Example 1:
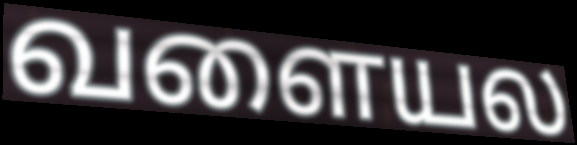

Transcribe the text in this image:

வளையல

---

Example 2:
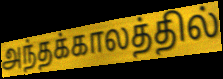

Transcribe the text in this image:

அந்தக்காலத்தில்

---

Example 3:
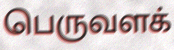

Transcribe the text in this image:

பெருவளக்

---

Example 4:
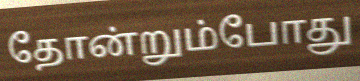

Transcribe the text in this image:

தோன்றும்போது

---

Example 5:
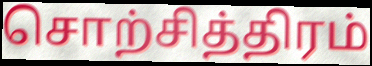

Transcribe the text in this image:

சொற்சித்திரம்